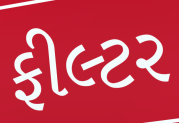
ફીલ્ટર